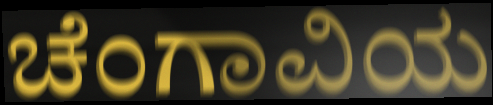
ಚೆಂಗಾವಿಯ